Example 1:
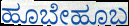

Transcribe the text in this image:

ಹೂಬೇಹೂಬ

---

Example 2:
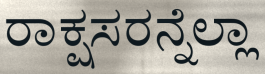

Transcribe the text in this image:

ರಾಕ್ಷಸರನ್ನೆಲ್ಲಾ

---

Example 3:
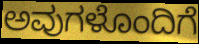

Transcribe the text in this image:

ಅವುಗಳೊಂದಿಗೆ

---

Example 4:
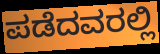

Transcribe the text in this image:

ಪಡೆದವರಲ್ಲಿ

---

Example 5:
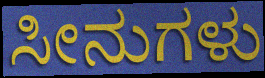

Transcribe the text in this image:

ಸೀನುಗಳು